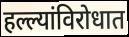
हल्ल्यांविरोधात